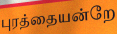
புரத்தையன்றே